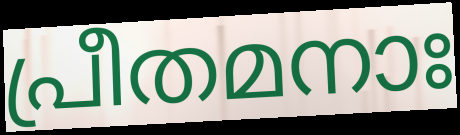
പ്രീതമനാഃ